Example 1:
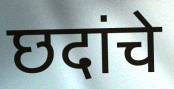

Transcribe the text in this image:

छदांचे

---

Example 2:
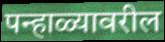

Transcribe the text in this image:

पन्हाळ्यावरील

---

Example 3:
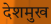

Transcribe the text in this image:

देशमुख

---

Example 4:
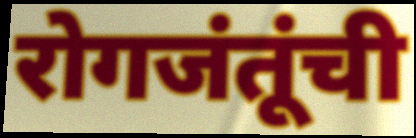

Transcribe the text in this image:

रोगजंतूंची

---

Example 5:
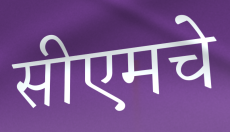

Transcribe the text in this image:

सीएमचे